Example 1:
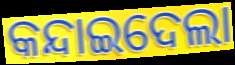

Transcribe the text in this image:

କନ୍ଦାଇଦେଲା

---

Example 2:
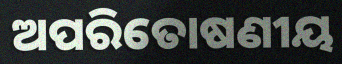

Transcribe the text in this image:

ଅପରିତୋଷଣୀୟ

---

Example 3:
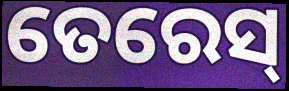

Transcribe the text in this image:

ତେରେସ୍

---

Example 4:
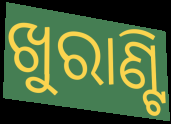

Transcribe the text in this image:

ଖୁରାଣ୍ଟି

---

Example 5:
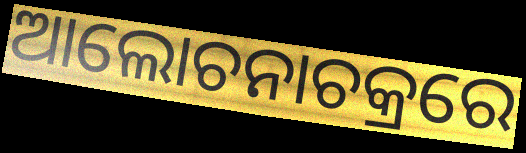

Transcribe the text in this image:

ଆଲୋଚନାଚକ୍ରରେ